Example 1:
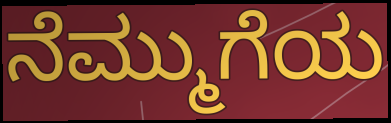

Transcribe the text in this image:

ನೆಮ್ಮುಗೆಯ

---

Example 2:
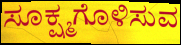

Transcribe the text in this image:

ಸೂಕ್ಷ್ಮಗೊಳಿಸುವ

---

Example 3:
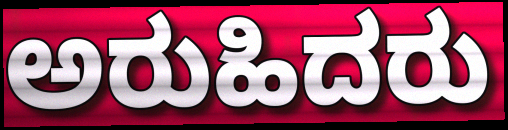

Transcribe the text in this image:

ಅರುಹಿದರು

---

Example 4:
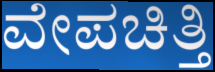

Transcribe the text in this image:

ವೇಪಚಿತ್ತಿ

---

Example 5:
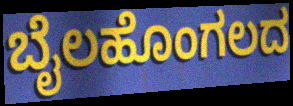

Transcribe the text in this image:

ಬೈಲಹೊಂಗಲದ